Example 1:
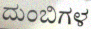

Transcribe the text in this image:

ದುಂಬಿಗಳ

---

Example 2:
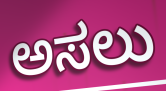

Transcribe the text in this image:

ಅಸಲು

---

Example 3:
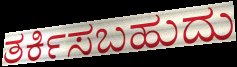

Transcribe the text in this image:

ತರ್ಕಿಸಬಹುದು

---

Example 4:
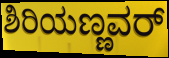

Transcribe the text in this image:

ಶಿರಿಯಣ್ಣವರ್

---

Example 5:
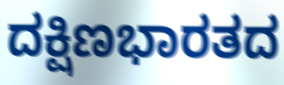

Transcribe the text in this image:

ದಕ್ಷಿಣಭಾರತದ